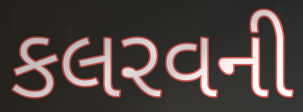
કલરવની